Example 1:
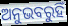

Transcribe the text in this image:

ଅନୁଭବରୁହିଁ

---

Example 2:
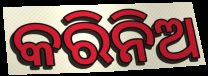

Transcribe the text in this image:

କରିନିଅ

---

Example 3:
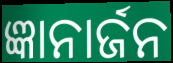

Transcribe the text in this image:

ଜ୍ଞାନାର୍ଜନ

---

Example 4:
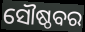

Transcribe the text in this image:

ସୌଷ୍ଠବର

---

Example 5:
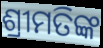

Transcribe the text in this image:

ଶ୍ରୀମତିଙ୍କ